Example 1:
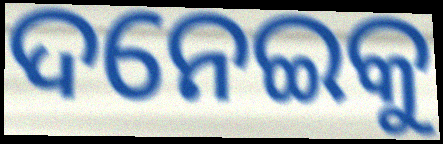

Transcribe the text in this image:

ଦନେଇକୁ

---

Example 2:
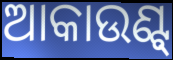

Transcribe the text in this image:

ଆକାଉଣ୍ଟ୍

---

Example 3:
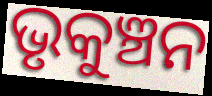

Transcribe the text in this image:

ଭୃକୁଞ୍ଚନ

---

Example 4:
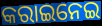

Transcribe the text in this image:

କରାଇନେଇ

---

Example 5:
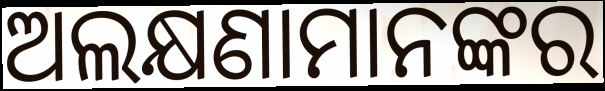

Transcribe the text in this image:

ଅଲକ୍ଷଣାମାନଙ୍କର